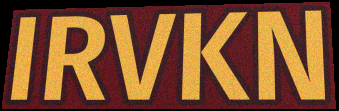
IRVKN